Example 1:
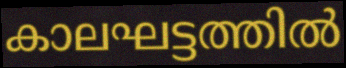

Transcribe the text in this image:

കാലഘട്ടത്തിൽ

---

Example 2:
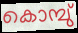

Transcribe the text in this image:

കൊമ്പു്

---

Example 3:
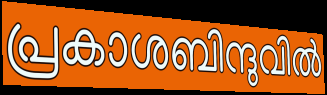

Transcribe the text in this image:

പ്രകാശബിന്ദുവിൽ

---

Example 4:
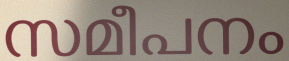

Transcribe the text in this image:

സമീപനം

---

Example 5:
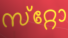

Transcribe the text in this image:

സ്‌റ്റോ